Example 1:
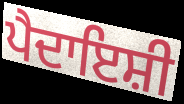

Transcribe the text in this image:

ਪੈਦਾਇਸ਼ੀ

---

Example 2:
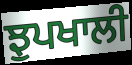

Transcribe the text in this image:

ਝੁਪਖਾਲੀ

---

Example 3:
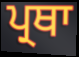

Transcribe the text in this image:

ਪ੍ਰਥਾ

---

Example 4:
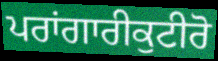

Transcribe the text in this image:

ਪਰਾਂਗਾਰੀਕੁਟੀਰੋ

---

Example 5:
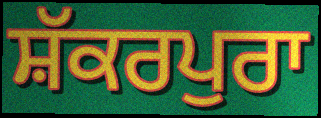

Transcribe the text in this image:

ਸ਼ੱਕਰਪੁਰਾ